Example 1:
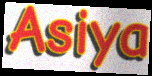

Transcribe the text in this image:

Asiya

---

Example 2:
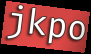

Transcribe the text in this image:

jkpo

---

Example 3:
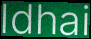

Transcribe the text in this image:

Idhai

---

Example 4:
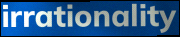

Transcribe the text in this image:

irrationality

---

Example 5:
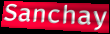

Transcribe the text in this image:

Sanchay